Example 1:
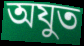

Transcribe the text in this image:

অযুত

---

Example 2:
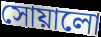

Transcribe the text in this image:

সোয়ালো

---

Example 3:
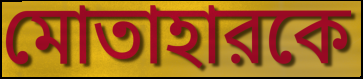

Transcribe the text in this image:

মোতাহারকে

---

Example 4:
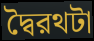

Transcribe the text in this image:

দ্বৈরথটা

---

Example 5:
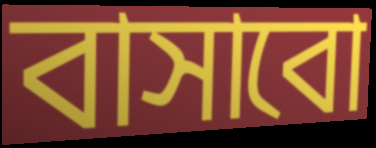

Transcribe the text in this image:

বাসাবো